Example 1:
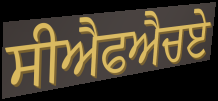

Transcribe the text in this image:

ਸੀਐਫਐਚਏ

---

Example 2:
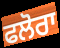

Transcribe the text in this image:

ਫਲੋਰਾ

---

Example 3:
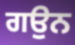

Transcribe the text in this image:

ਗਉਨ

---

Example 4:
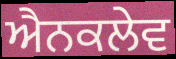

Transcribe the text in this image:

ਐਨਕਲੇਵ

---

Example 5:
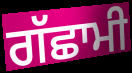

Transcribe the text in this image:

ਗੱਛਾਮੀ